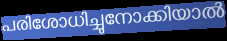
പരിശോധിച്ചുനോക്കിയാൽ